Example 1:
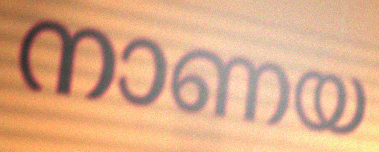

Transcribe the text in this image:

നാണയ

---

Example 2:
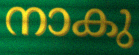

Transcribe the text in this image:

നാകു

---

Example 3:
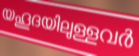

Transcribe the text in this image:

യഹൂദയിലുള്ളവർ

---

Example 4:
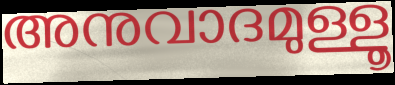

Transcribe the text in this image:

അനുവാദമുള്ളൂ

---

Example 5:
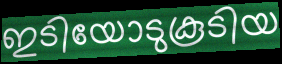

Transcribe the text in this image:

ഇടിയോടുകൂടിയ